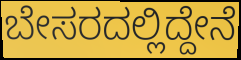
ಬೇಸರದಲ್ಲಿದ್ದೇನೆ